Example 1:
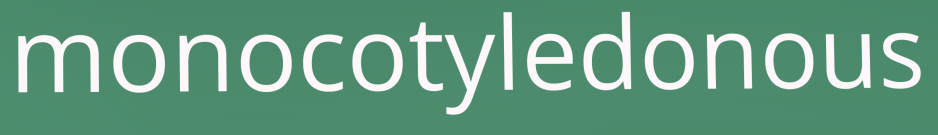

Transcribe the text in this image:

monocotyledonous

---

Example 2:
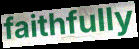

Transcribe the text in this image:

faithfully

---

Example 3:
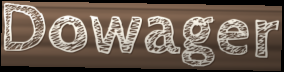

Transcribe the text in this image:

Dowager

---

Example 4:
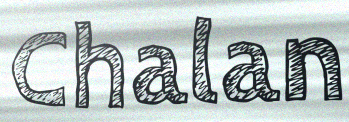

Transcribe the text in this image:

Chalan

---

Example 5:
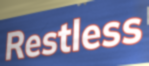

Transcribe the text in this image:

Restless